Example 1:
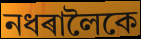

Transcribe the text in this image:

নধৰালৈকে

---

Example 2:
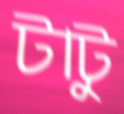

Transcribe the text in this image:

টাটু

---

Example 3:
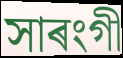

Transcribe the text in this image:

সাৰংগী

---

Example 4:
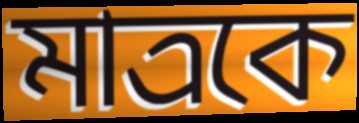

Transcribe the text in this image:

মাত্ৰকে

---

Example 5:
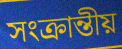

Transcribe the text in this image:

সংক্ৰান্তীয়